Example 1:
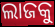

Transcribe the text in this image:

ଲାଜକୁ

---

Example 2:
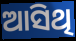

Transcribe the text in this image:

ଆସିଥି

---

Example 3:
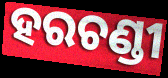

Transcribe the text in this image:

ହରଚଣ୍ଡୀ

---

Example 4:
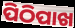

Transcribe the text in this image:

ପିଠିପାଖ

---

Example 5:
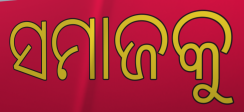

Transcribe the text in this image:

ସମାଜକୁ